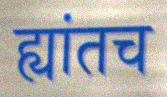
ह्यांतच